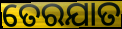
ତେରଯାତ